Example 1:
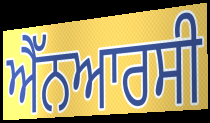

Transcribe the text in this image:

ਐੱਨਆਰਸੀ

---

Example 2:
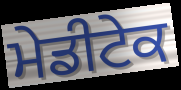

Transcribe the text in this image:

ਮੇਡੀਟੇਕ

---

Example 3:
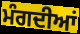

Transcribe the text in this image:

ਮੰਗਦੀਆਂ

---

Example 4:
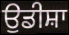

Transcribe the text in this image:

ਉਡੀਸ਼ਾ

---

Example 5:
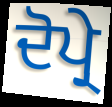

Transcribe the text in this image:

ਦੋਪ੍ਰੇ